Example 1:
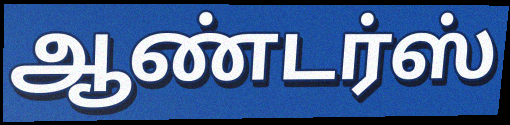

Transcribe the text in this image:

ஆண்டர்ஸ்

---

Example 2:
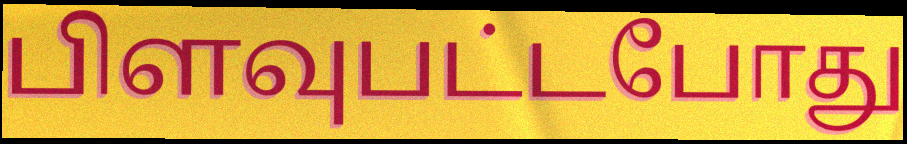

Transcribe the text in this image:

பிளவுபட்டபோது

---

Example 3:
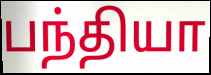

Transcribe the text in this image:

பந்தியா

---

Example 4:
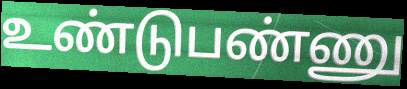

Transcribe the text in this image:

உண்டுபண்ணு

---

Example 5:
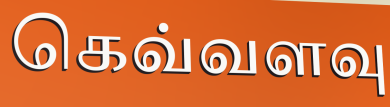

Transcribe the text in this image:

கெவ்வளவு